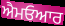
ਐਮਓਆਰ